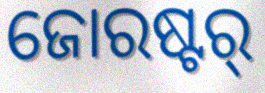
ଜୋରଷ୍ଟର୍